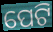
ପେଟି